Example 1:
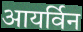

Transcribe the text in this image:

आयर्विन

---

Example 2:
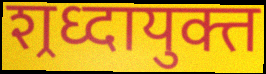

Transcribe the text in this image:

श्रध्दायुक्त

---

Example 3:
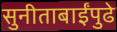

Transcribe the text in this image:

सुनीताबाईंपुढे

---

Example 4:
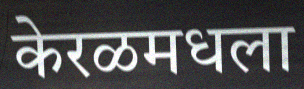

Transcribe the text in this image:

केरळमधला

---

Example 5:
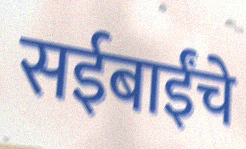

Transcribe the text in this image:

सईबाईंचे